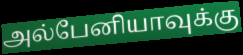
அல்பேனியாவுக்கு